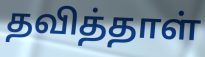
தவித்தாள்